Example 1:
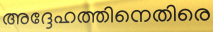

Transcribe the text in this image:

അദ്ദേഹത്തിനെതിരെ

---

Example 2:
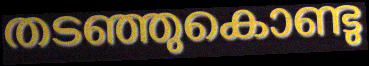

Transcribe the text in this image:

തടഞ്ഞുകൊണ്ടു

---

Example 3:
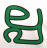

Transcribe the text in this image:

ല്പ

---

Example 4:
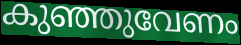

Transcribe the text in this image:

കുഞ്ഞുവേണം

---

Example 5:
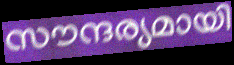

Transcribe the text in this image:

സൗന്ദര്യമായി